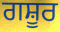
ਗਸ਼ੂਰ